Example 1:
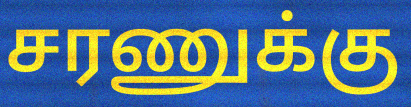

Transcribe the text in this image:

சரணுக்கு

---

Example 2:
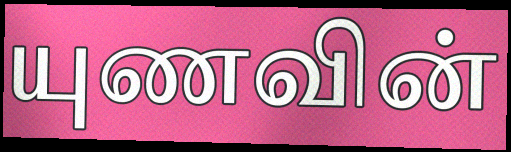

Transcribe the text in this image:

யுணவின்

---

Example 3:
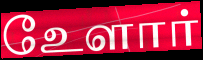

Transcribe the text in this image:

உேளார்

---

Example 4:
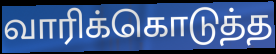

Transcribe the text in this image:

வாரிக்கொடுத்த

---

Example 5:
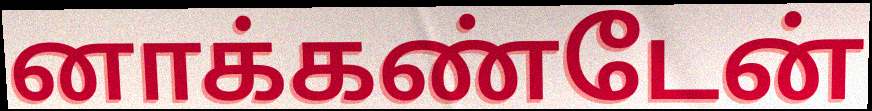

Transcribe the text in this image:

னாக்கண்டேன்